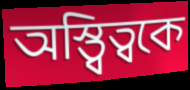
অস্ত্বিত্বকে